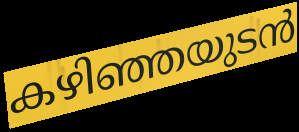
കഴിഞ്ഞയുടൻ